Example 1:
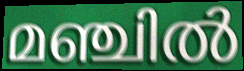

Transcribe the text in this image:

മഞ്ചിൽ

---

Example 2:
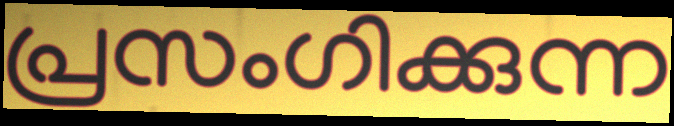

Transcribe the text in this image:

പ്രസംഗിക്കുന്ന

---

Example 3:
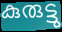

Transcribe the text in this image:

കുരുട്ടു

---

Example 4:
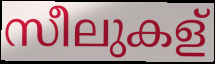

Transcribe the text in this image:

സീലുകള്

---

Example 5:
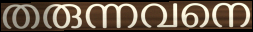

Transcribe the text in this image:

തരുന്നവനെ